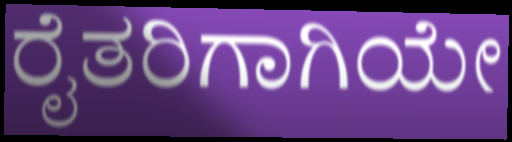
ರೈತರಿಗಾಗಿಯೇ